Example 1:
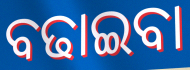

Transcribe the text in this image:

ବଢାଇବା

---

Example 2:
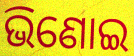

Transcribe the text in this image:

ଭିଣୋଇ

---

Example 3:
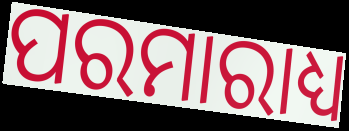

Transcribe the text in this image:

ପରମାରାଧ୍ୟ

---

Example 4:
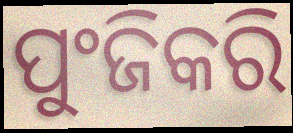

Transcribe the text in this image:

ପୁଂଜିକରି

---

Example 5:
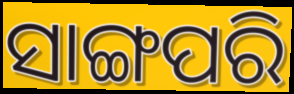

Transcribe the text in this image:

ସାଙ୍ଗପରି